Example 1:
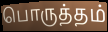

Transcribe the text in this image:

பொருத்தம்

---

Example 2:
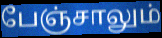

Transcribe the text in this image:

பேஞ்சாலும்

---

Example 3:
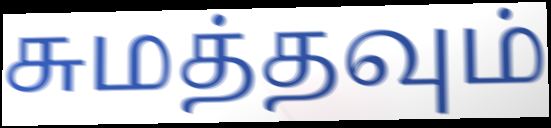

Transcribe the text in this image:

சுமத்தவும்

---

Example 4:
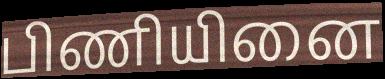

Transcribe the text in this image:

பிணியினை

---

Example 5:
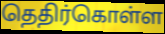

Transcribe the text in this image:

தெதிர்கொள்ள